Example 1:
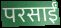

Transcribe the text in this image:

परसाईं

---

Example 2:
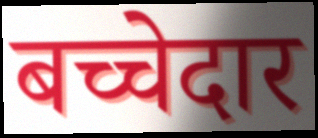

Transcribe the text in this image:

बच्चेदार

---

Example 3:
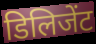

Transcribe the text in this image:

डिलिजेंट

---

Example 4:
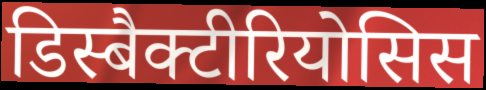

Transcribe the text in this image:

डिस्बैक्टीरियोसिस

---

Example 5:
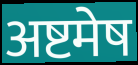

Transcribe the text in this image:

अष्टमेष